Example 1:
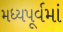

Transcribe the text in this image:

મધ્યપૂર્વમાં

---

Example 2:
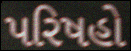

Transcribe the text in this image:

પરિષહો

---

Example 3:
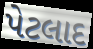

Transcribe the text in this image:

પેટલાદ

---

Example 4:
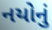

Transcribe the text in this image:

નયોનું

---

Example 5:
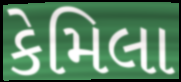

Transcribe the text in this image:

કેમિલા